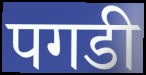
पगडी